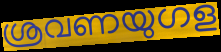
ശ്രവണയുഗള